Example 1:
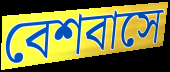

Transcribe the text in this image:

বেশবাসে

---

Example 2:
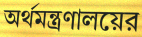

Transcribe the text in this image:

অর্থমন্ত্রণালয়ের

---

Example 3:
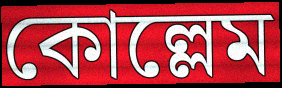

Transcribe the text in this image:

কোল্লেম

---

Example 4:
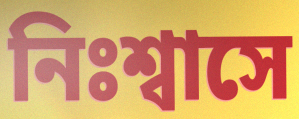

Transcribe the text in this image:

নিঃশ্বাসে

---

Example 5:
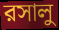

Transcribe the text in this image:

রসালু